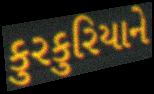
કુરકુરિયાને